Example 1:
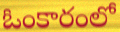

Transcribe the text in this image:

ఓంకారంలో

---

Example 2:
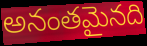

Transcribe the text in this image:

అనంతమైనది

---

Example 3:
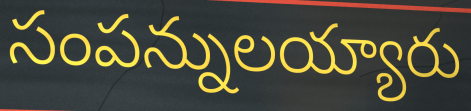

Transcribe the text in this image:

సంపన్నులయ్యారు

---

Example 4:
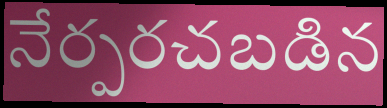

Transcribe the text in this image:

నేర్పరచబడిన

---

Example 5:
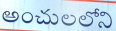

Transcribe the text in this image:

అంచులలోని